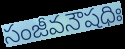
సంజీవనౌషధిః